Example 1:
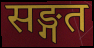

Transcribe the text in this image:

सङ्गत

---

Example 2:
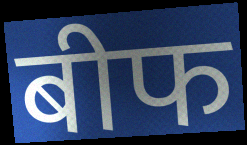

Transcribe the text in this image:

बीफ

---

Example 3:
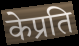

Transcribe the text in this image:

केप्रति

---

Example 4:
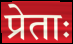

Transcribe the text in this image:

प्रेताः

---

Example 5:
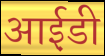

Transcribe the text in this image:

आई़डी